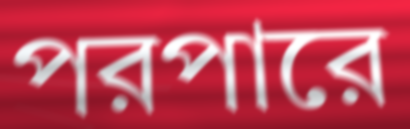
পরপারে